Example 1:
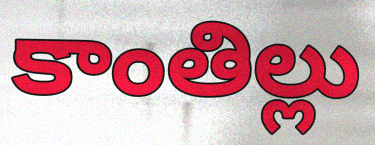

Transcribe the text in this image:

కాంతిల్లు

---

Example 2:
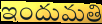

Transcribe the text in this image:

ఇందుమతి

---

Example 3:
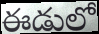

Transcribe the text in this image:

ఈడులో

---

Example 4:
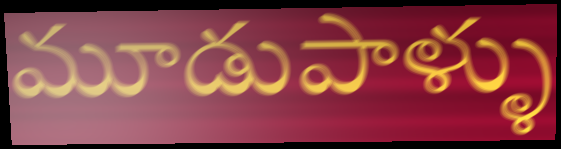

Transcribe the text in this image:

మూడుపాళ్ళు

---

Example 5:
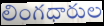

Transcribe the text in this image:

లింగధారుల